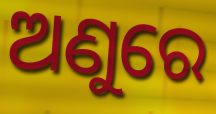
ଅଣୁରେ